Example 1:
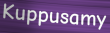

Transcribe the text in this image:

Kuppusamy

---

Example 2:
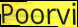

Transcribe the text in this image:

Poorvi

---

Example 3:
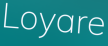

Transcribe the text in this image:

Loyare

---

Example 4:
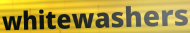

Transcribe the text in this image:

whitewashers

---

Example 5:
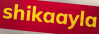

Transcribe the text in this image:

shikaayla